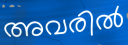
അവരിൽ